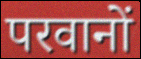
परवानों